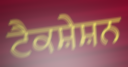
ਟੈਕਸ਼ੇਸ਼ਨ